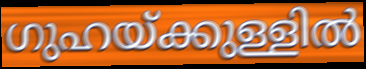
ഗുഹയ്ക്കുള്ളിൽ